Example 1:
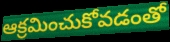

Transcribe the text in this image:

ఆక్రమించుకోవడంతో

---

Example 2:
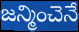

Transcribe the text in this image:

జన్మించెనే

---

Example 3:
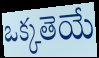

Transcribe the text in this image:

ఒక్కతెయే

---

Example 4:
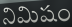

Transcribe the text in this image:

నిమిషం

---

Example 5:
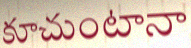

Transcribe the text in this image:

కూచుంటానా